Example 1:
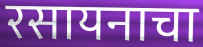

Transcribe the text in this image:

रसायनाचा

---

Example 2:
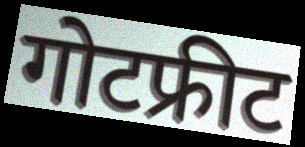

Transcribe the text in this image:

गोटफ्रीट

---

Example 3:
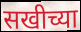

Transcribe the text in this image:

सखीच्या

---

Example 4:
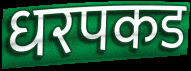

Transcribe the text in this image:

धरपकड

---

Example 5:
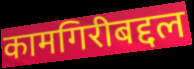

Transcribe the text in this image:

कामगिरीबद्दल